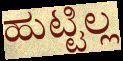
ಹುಟ್ಟಿಲ್ಲ